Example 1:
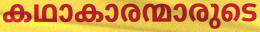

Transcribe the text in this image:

കഥാകാരന്മാരുടെ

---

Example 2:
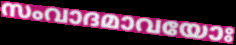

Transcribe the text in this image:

സംവാദമാവയോഃ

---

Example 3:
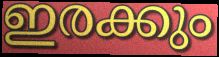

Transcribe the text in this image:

ഇരക്കും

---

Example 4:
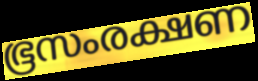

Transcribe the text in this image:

ഭൂസംരക്ഷണ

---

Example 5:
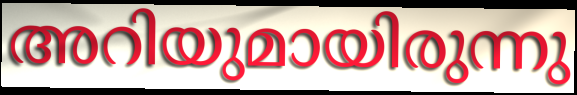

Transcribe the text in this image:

അറിയുമായിരുന്നു